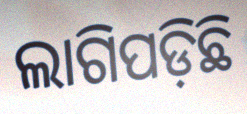
ଲାଗିପଡ଼ିଛି